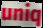
uniq